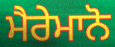
ਮੈਰੇਮਾਨੋ